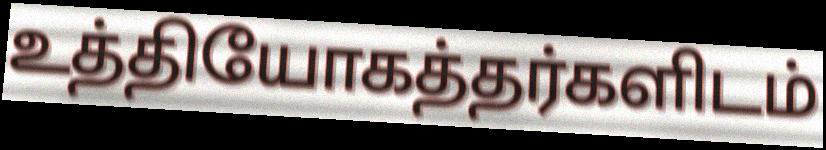
உத்தியோகத்தர்களிடம்